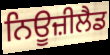
ਨਿਊਜ਼ੀਲੈਡ